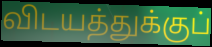
விடயத்துக்குப்